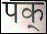
पक्